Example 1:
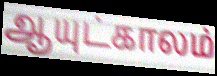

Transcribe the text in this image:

ஆயுட்காலம்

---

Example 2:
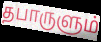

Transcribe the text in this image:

தபாருளும்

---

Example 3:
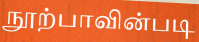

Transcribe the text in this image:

நூற்பாவின்படி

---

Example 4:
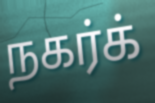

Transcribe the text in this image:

நகர்க்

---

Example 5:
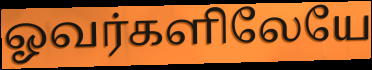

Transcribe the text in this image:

ஓவர்களிலேயே